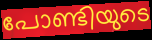
പോണ്ടിയുടെ